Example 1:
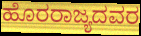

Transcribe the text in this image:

ಹೊರರಾಜ್ಯದವರ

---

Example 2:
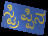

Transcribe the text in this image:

ಸ್ಟ್ರಿಪ್ಪಿನ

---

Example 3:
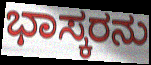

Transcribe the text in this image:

ಭಾಸ್ಕರನು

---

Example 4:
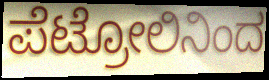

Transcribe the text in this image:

ಪೆಟ್ರೋಲಿನಿಂದ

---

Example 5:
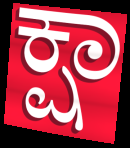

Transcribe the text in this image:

ಕ್ಷಾ